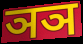
ञञ